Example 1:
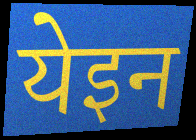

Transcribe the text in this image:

येइन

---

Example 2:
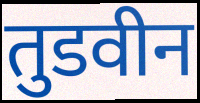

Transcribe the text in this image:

तुडवीन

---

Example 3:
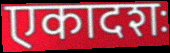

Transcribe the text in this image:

एकादशः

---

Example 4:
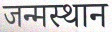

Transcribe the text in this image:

जन्मस्थान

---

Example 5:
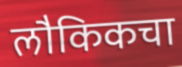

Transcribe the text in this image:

लौकिकचा